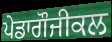
ਪੇਡਾਗੌਜੀਕਲ